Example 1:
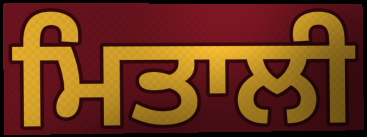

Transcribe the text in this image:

ਮਿਤਾਲੀ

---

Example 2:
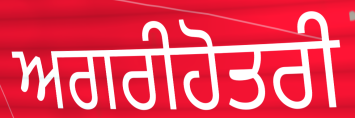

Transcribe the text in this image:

ਅਗਰੀਹੋਤਰੀ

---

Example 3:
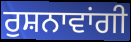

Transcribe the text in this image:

ਰੁਸ਼ਨਾਵਾਂਗੀ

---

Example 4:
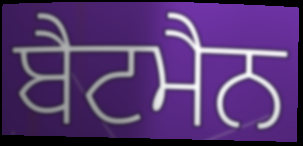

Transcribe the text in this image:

ਬੈਟਮੈਨ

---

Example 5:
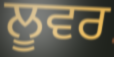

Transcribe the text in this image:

ਲੂਵਰ